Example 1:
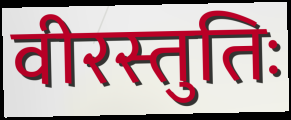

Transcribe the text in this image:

वीरस्तुतिः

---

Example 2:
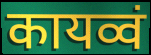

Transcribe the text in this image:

कायव्वं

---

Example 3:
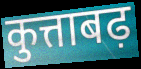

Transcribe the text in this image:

कुत्ताबढ़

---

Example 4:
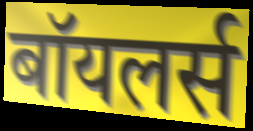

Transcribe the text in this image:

बॉयलर्स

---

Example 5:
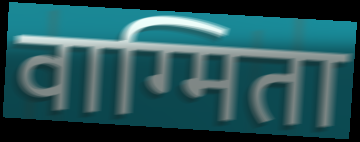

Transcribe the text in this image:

वाग्मिता